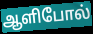
ஆளிபோல்